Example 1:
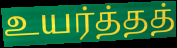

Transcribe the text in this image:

உயர்த்தத்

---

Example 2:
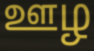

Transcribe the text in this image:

ஊழ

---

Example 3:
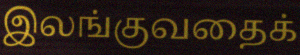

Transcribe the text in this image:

இலங்குவதைக்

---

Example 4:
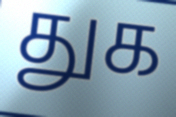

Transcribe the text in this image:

துக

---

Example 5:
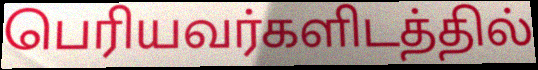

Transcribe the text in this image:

பெரியவர்களிடத்தில்